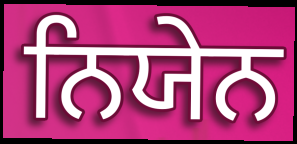
ਨਿਯੇਨ